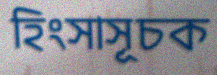
হিংসাসূচক